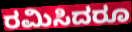
ರಮಿಸಿದರೂ